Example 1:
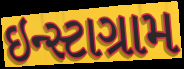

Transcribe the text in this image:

ઇન્સ્ટાગ્રામ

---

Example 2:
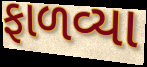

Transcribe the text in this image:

ફાળવ્યા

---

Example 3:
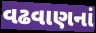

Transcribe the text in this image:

વઢવાણનાં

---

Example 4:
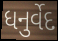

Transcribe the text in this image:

ધનુર્વેદ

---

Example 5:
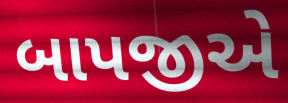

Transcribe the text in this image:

બાપજીએ